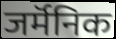
जर्मॅनिक